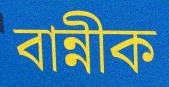
বান্নীক